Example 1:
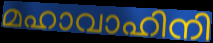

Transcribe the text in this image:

മഹാവാഹിനി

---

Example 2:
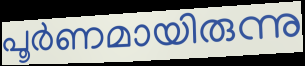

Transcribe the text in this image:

പൂർണമായിരുന്നു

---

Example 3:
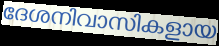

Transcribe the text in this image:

ദേശനിവാസികളായ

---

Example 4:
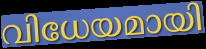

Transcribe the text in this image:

വിധേയമായി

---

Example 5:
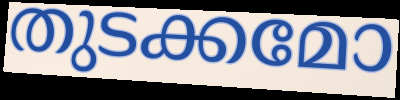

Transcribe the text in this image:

തുടക്കമോ